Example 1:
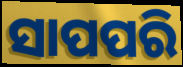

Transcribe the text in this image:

ସାପପରି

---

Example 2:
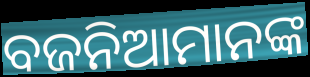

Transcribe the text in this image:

ବଜନିଆମାନଙ୍କ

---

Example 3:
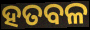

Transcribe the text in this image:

ହତବଳ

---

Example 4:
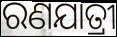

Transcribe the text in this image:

ରଣଯାତ୍ରୀ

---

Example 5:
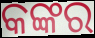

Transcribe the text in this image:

କଙ୍କର